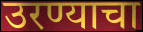
उरण्याचा